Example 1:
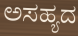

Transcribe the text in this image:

ಅಸಹ್ಯದ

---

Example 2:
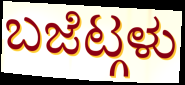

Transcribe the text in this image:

ಬಜೆಟ್ಗಳು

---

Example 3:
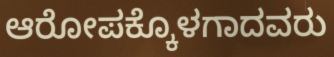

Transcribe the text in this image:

ಆರೋಪಕ್ಕೊಳಗಾದವರು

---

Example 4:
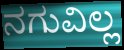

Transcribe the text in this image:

ನಗುವಿಲ್ಲ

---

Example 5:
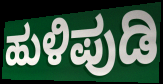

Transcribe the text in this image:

ಹುಳಿಪುಡಿ